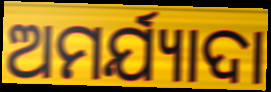
ଅମର୍ଯ୍ୟାଦା